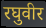
रघुवीर